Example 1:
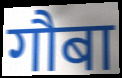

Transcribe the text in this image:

गौबा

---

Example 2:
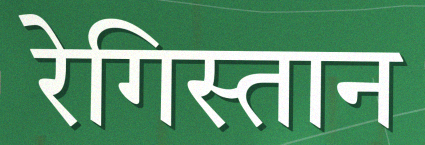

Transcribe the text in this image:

रेगिस्‍तान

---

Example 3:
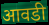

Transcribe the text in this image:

आवडी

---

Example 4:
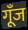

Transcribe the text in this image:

गूँज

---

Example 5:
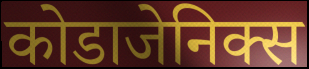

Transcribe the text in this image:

कोडाजेनिक्स